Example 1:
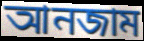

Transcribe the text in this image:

আনজাম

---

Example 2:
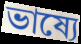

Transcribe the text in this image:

ভাষ্যে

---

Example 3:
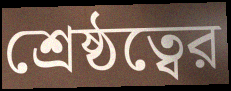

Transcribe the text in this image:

শ্রেষ্ঠত্বের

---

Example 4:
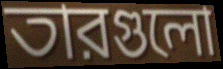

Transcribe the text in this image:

তারগুলো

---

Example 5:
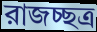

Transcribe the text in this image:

রাজচ্ছত্র